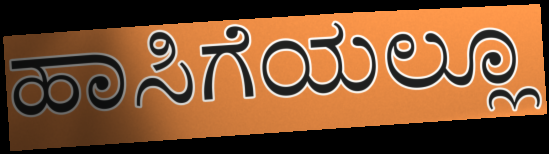
ಹಾಸಿಗೆಯಲ್ಲೂ